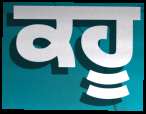
ਕਹੂ